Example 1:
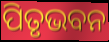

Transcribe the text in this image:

ପିତୃଭବନ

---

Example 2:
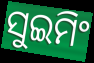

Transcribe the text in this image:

ସୁଇମିଂ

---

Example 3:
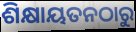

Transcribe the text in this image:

ଶିକ୍ଷାୟତନଠାରୁ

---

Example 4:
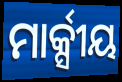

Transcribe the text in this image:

ମାର୍କ୍ସୀୟ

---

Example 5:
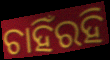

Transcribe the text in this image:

ଚାହିଁରହି